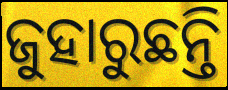
ଜୁହାରୁଛନ୍ତି